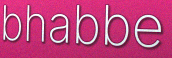
bhabbe